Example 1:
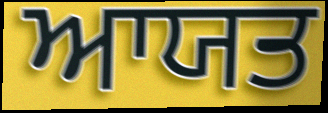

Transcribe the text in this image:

ਆਯਤ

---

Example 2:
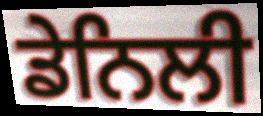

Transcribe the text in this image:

ਡੇਨਿਲੀ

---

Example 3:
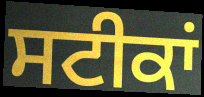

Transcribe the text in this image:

ਸਟੀਕਾਂ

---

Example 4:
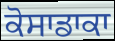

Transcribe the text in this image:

ਕੋਸਾਡਾਕਾ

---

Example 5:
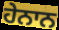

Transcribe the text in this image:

ਹੇਨਾਨ